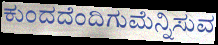
ಕುಂದದೆಂದಿಗುಮೆನ್ನಿಸುವ